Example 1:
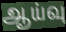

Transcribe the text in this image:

ஆய்வு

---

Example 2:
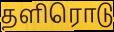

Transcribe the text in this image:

தளிரொடு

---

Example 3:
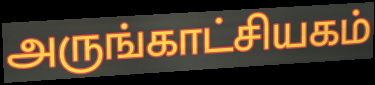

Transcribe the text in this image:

அருங்காட்சியகம்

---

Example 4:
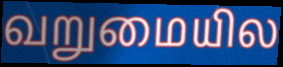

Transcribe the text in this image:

வறுமையில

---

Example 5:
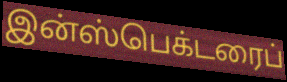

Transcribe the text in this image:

இன்ஸ்பெக்டரைப்